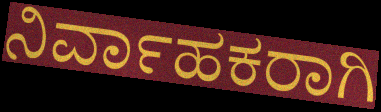
ನಿರ್ವಾಹಕರಾಗಿ